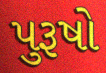
પુરૂષો